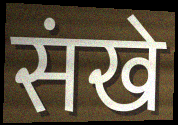
संखे